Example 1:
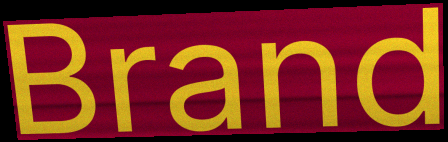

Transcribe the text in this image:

Brand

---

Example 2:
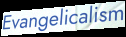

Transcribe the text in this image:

Evangelicalism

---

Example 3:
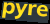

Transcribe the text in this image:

pyre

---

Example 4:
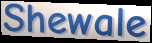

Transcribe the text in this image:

Shewale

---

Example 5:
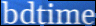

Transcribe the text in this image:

bdtime